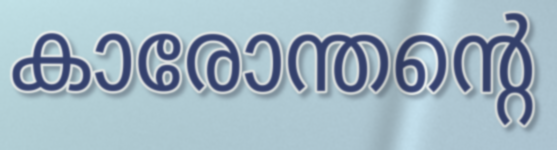
കാരോന്തന്റെ